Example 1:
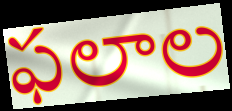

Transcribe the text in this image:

ఫలాల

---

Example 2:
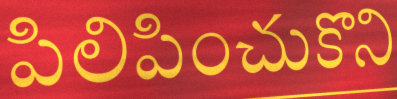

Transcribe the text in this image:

పిలిపించుకొని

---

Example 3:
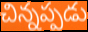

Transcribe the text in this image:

చిన్నప్పడు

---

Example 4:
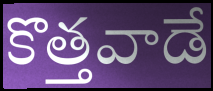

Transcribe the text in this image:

కొత్తవాడే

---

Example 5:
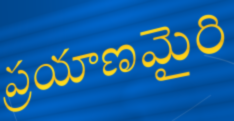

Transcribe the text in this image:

ప్రయాణమైరి